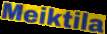
Meiktila